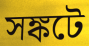
সঙ্কটে